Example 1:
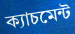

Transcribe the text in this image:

ক্যাচমেন্ট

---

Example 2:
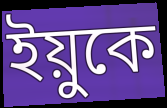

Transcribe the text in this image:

ইয়ুকে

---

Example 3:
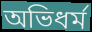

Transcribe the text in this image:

অভিধর্ম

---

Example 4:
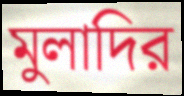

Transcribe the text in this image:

মুলাদির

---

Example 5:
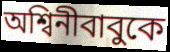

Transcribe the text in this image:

অশ্বিনীবাবুকে